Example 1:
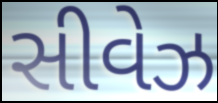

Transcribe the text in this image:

સીવેઝ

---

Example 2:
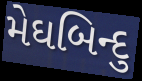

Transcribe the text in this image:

મેઘબિન્દુ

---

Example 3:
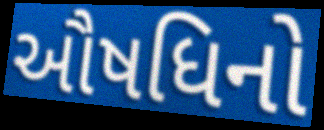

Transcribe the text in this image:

ઔષધિનો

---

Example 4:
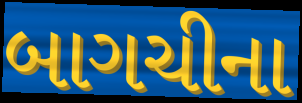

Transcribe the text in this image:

બાગચીના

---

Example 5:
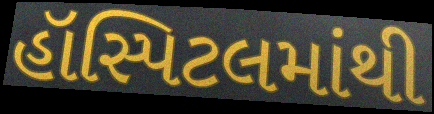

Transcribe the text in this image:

હૉસ્પિટલમાંથી